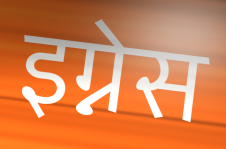
इग्नेस